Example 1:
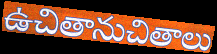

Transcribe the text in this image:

ఉచితానుచితాలు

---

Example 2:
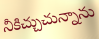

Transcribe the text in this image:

నీకిచ్చుచున్నాను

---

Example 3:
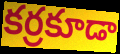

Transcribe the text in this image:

కర్రకూడా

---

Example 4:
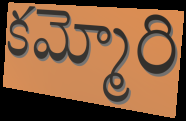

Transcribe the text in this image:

కమ్మోరి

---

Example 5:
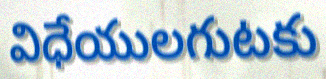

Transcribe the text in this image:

విధేయులగుటకు